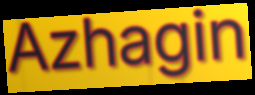
Azhagin